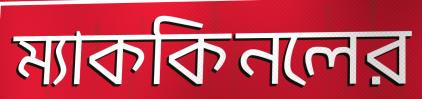
ম্যাককিনলের